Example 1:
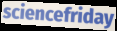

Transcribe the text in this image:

sciencefriday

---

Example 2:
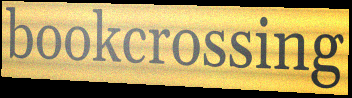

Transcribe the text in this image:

bookcrossing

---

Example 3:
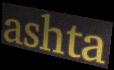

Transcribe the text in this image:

ashta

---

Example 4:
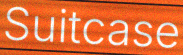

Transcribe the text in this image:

Suitcase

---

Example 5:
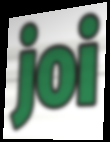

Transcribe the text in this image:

joi